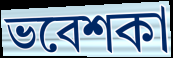
ভবেশকা